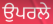
ਉਪਰਲੇ